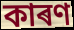
কাৰণ